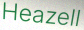
Heazell